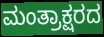
ಮಂತ್ರಾಕ್ಷರದ